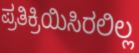
ಪ್ರತಿಕ್ರಿಯಿಸಿರಲಿಲ್ಲ